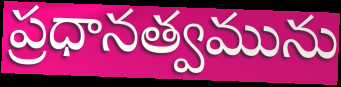
ప్రధానత్వమును